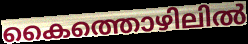
കൈത്തൊഴിലിൽ